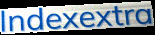
Indexextra